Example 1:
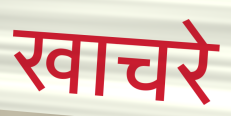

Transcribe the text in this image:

खाचरे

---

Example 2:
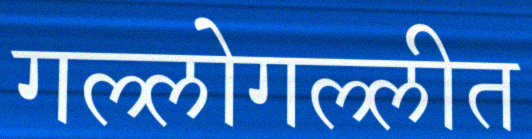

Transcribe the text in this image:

गल्लोगल्लीत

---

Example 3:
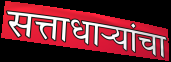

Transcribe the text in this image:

सत्ताधाऱ्यांचा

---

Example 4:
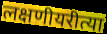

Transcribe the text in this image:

लक्षणीयरीत्या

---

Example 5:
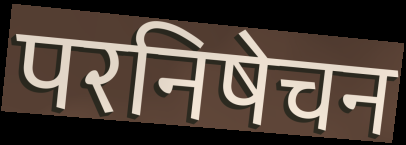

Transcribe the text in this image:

परनिषेचन